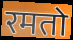
रमतो